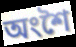
অংশৈ